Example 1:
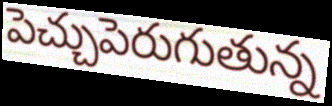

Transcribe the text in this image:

పెచ్చుపెరుగుతున్న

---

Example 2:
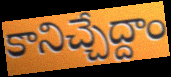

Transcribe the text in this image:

కానిచ్చేద్దాం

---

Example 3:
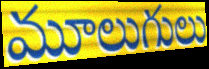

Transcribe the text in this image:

మూలుగులు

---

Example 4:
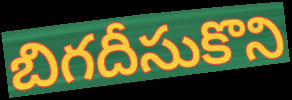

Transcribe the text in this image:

బిగదీసుకొని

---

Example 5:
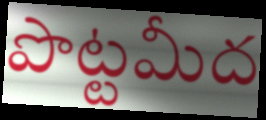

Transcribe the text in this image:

పొట్టమీద